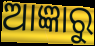
ଆଜ୍ଞାରୁ